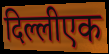
दिल्लीएक